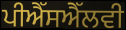
ਪੀਐੱਸਐੱਲਵੀ